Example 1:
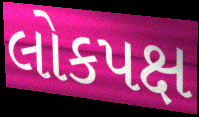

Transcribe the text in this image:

લોકપક્ષ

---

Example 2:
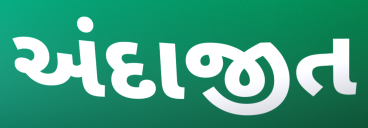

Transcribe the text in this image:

અંદાજીત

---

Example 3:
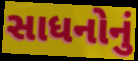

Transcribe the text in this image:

સાધનોનું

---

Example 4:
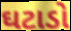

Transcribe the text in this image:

ઘટાડો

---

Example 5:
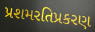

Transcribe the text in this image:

પ્રશમરતિપ્રકરણ